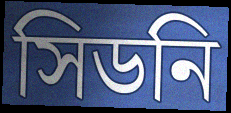
সিডনি